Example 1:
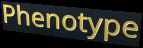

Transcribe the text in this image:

Phenotype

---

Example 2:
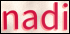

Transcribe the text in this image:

nadi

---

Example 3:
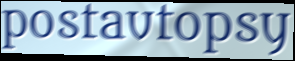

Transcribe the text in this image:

postautopsy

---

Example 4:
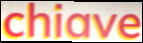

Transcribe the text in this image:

chiave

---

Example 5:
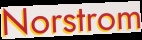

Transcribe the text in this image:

Norstrom